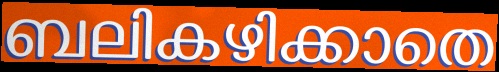
ബലികഴിക്കാതെ